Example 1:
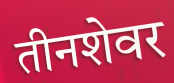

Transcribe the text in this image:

तीनशेवर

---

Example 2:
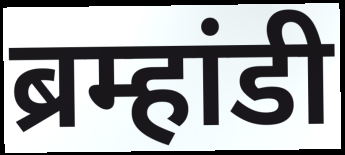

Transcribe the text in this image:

ब्रम्हांडी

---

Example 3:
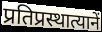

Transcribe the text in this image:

प्रतिप्रस्थात्यानें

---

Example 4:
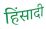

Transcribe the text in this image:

हिंसादी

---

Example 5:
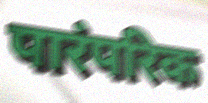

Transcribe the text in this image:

पारंपरिक